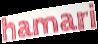
hamari